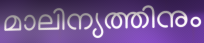
മാലിന്യത്തിനും